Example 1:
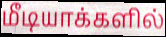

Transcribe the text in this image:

மீடியாக்களில்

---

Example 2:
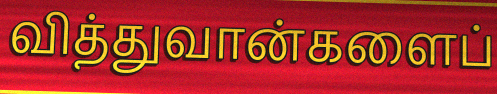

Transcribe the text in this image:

வித்துவான்களைப்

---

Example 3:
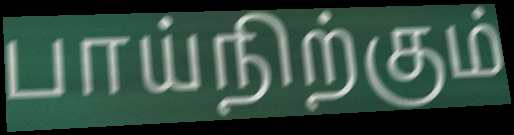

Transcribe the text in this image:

பாய்நிற்கும்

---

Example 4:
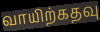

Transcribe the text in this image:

வாயிற்கதவு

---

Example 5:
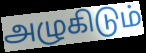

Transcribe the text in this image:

அழுகிடும்